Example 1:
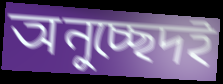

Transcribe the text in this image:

অনুচ্ছেদই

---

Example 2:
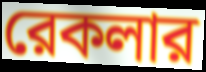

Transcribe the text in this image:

রেকলার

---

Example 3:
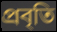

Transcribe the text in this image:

প্রবৃতি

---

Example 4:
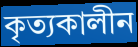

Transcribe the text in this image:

কৃত্যকালীন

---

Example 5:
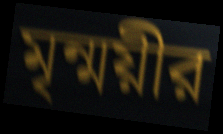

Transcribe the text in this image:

মৃন্ময়ীর